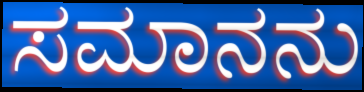
ಸಮಾನನು